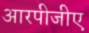
आरपीजीए